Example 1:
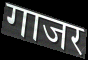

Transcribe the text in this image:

गाजर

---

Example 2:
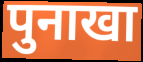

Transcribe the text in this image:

पुनाखा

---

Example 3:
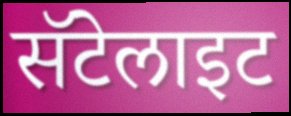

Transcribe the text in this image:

सॅटेलाइट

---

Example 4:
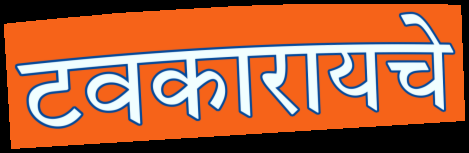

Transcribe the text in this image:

टवकारायचे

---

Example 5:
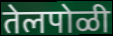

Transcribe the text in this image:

तेलपोळी